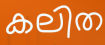
കലിത